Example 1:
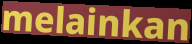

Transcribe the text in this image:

melainkan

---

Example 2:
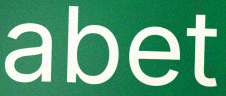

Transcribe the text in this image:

abet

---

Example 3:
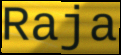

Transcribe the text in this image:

Raja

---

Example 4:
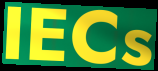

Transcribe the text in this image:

IECs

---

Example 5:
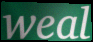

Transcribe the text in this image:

weal